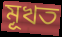
মূখত